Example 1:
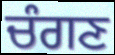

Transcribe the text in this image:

ਚੰਗਣ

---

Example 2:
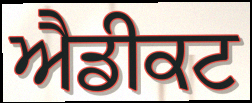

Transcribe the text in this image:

ਐਡੀਕਟ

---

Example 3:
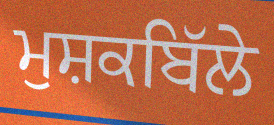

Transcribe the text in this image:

ਮੁਸ਼ਕਬਿੱਲੇ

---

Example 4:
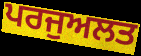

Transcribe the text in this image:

ਪਰਜੁਅਲਤ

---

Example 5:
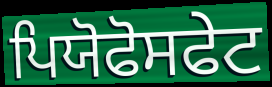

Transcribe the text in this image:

ਪਿਯੋਫੋਸਫੇਟ